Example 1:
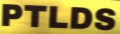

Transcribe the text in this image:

PTLDS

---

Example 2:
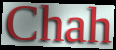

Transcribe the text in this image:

Chah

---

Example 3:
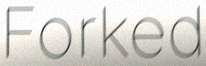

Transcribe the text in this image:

Forked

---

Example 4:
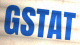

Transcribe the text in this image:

GSTAT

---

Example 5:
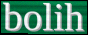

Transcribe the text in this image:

bolih